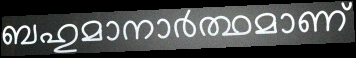
ബഹുമാനാർത്ഥമാണ്